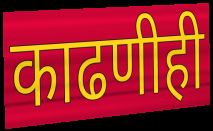
काढणीही